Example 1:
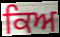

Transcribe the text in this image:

ਕਿਅ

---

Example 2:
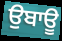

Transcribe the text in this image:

ਉਬਾਊ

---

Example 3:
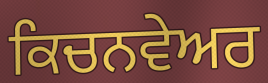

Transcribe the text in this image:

ਕਿਚਨਵੇਅਰ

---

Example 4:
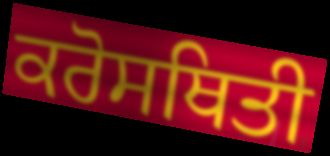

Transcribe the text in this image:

ਕਰੋਸਥਿਤੀ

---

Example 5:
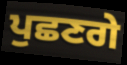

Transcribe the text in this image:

ਪੁਛਣਗੇ